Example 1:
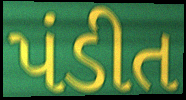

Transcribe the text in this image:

પંડીત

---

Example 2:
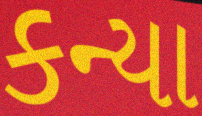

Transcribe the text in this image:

કન્યા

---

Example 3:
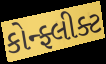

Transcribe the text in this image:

કોન્ફ્લીક્ટ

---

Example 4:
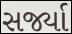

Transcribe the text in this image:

સર્જ્યા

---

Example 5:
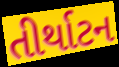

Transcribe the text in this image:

તીર્થાટન